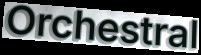
Orchestral